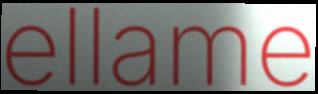
ellame